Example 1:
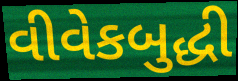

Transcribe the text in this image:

વીવેકબુદ્ધી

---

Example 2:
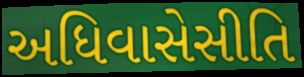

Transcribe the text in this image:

અધિવાસેસીતિ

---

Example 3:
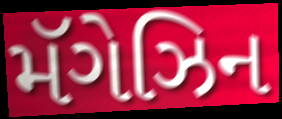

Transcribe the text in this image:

મૅગેઝિન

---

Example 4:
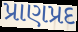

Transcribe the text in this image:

પ્રાણપ્રદ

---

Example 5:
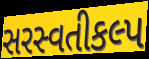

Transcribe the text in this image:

સરસ્વતીકલ્પ